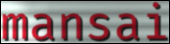
mansai